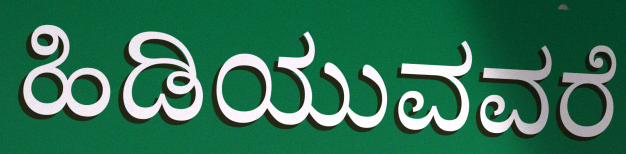
ಹಿಡಿಯುವವರೆ